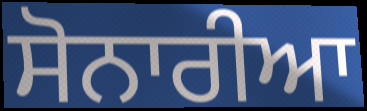
ਸੋਨਾਰੀਆ